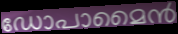
ഡോപാമൈൻ